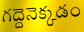
గద్దెనెక్కడం